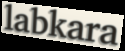
labkara